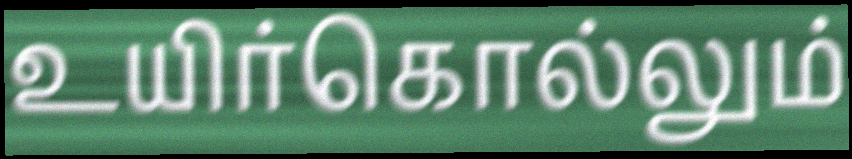
உயிர்கொல்லும்